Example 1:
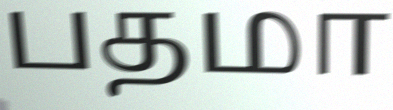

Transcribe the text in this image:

பதமா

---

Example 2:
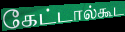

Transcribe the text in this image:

கேட்டால்கூட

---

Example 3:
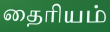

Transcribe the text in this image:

தைரியம்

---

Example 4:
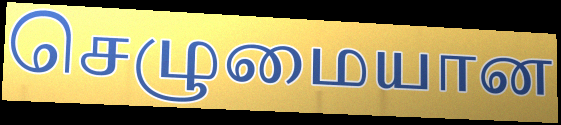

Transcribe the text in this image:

செழுமையான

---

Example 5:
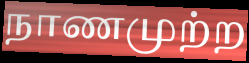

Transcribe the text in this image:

நாணமுற்ற